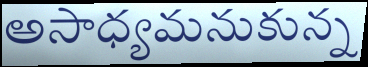
అసాధ్యమనుకున్న